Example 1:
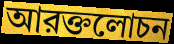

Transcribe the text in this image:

আরক্তলোচন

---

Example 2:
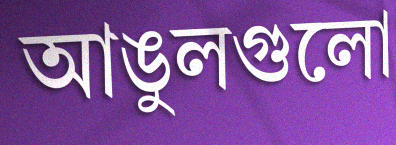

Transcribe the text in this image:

আঙুলগুলো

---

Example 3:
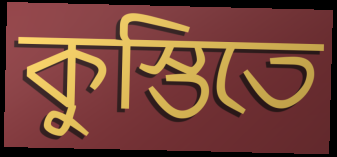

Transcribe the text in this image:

কুস্তিতে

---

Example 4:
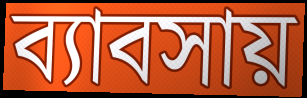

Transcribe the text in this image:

ব্যাবসায়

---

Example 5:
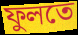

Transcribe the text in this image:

ফুলতে